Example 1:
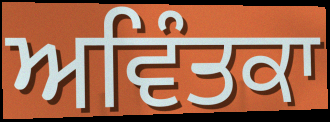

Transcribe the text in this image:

ਅਵਿੰਤਕਾ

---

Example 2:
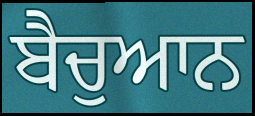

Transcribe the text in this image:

ਬੈਚੁਆਨ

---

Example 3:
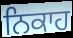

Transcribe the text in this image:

ਨਿਕਾਹ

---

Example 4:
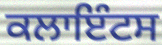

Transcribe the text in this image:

ਕਲਾਇੰਟਸ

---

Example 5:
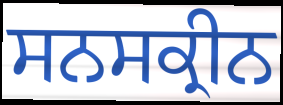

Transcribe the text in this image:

ਸਨਸਕ੍ਰੀਨ